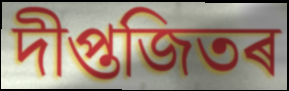
দীপ্তজিতৰ